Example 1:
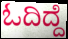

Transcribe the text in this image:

ಓದಿದ್ದೆ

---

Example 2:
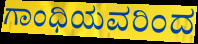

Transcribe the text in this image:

ಗಾಂಧಿಯವರಿಂದ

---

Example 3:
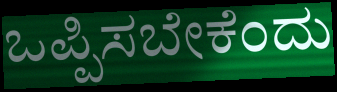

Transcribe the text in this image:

ಒಪ್ಪಿಸಬೇಕೆಂದು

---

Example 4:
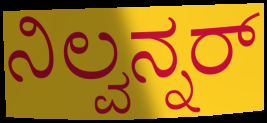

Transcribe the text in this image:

ನಿಲ್ವನ್ನರ್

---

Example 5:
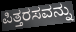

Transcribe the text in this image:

ಪಿತ್ತರಸವನ್ನು